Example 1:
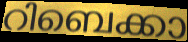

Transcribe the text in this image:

റിബെക്കാ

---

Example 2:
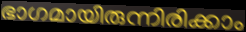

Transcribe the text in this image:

ഭാഗമായിരുന്നിരിക്കാം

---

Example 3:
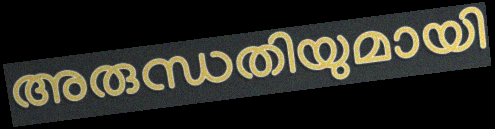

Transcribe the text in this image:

അരുന്ധതിയുമായി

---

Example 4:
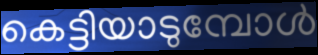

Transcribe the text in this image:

കെട്ടിയാടുമ്പോൾ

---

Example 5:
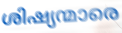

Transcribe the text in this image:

ശിഷ്യന്മാരെ